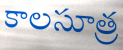
కాలసూత్ర